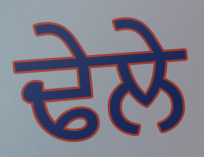
ਢੇਲੇ